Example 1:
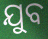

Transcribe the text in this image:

ଯୁବ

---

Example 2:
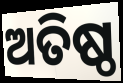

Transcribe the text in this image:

ଅତିଷ୍ଠ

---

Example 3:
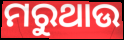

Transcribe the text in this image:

ମରୁଥାଉ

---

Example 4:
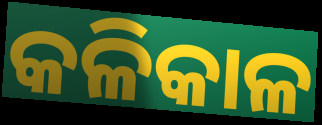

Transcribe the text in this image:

କଳିକାଳ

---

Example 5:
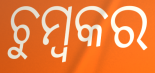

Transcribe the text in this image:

ଚୁମ୍ବକର